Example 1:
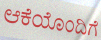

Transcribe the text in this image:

ಆಕೆಯೊಂದಿಗೆ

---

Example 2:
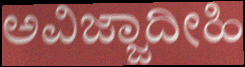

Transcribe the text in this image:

ಅವಿಜ್ಜಾದೀಹಿ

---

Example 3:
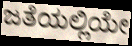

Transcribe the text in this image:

ಜತೆಯಲ್ಲಿಯೇ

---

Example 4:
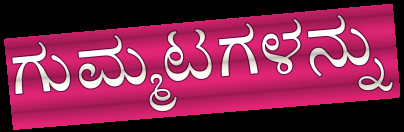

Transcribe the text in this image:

ಗುಮ್ಮಟಗಳನ್ನು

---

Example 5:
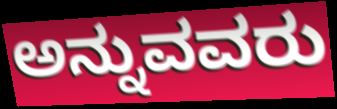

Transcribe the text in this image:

ಅನ್ನುವವರು